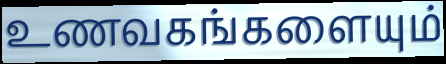
உணவகங்களையும்